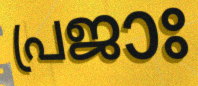
പ്രജാഃ